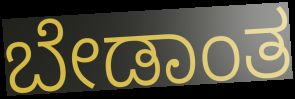
ಬೇಡಾಂತ